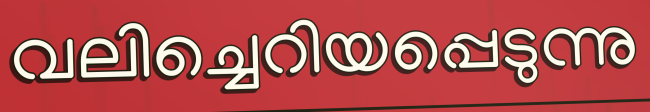
വലിച്ചെറിയപ്പെടുന്നു